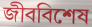
জীববিশেষ